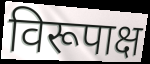
विरूपाक्ष